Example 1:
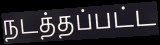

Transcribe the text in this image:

நடத்தப்பட்ட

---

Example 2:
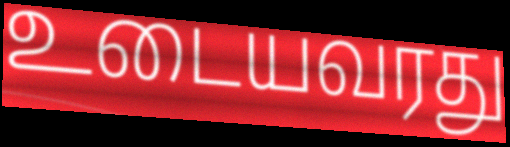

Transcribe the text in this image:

உடையவரது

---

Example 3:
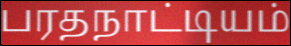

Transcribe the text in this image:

பரதநாட்டியம்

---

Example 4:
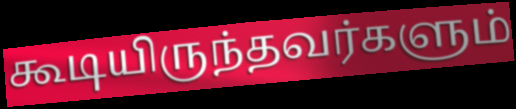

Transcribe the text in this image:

கூடியிருந்தவர்களும்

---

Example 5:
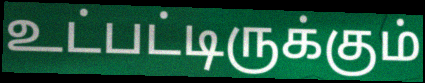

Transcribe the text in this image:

உட்பட்டிருக்கும்